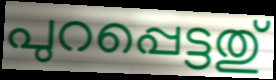
പുറപ്പെട്ടതു്